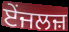
ਏਂਜਲਜ਼